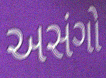
અસંગો